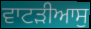
ਵਾਟੜੀਆਸੁ